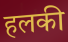
हलकी